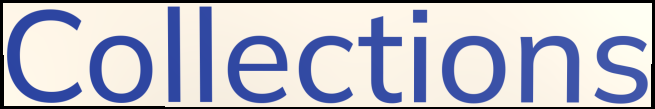
Collections